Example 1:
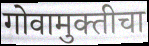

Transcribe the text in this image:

गोवामुक्तीचा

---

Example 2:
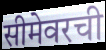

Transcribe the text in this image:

सीमेवरची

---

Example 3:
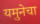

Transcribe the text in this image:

यमुनेचा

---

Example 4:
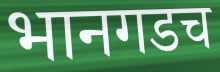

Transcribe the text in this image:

भानगडच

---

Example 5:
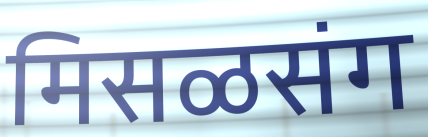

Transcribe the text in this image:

मिसळसंग